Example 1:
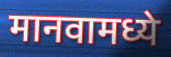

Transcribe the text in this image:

मानवामध्ये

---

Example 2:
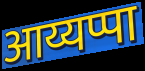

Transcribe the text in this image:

आय्यप्पा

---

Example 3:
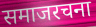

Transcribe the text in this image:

समाजरचना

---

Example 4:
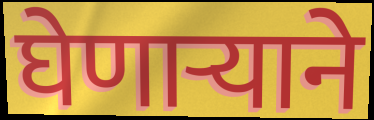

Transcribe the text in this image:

घेणाऱ्याने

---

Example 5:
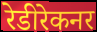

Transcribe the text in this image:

रेडीरेकनर